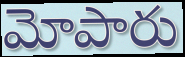
మోపారు